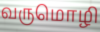
வருமொழி